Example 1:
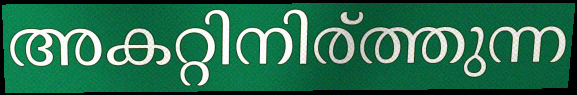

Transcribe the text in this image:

അകറ്റിനിര്ത്തുന്ന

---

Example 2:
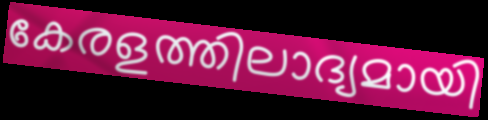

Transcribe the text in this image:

കേരളത്തിലാദ്യമായി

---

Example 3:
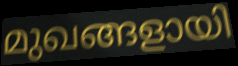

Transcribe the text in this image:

മുഖങ്ങളായി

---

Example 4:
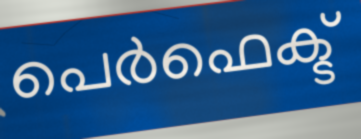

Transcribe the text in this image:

പെർഫെക്ട്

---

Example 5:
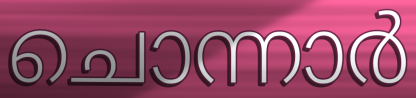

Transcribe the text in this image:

ചൊന്നാർ